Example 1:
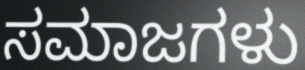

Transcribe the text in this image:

ಸಮಾಜಗಳು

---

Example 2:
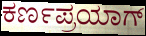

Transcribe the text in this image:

ಕರ್ಣಪ್ರಯಾಗ್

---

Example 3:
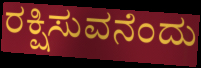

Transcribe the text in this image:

ರಕ್ಷಿಸುವನೆಂದು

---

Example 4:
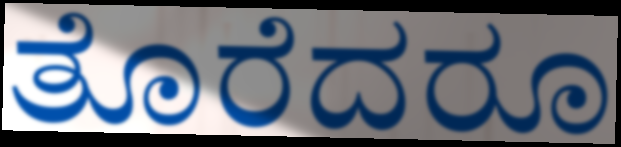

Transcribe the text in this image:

ತೊರೆದರೂ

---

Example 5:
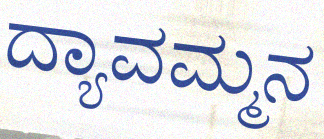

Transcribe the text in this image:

ದ್ಯಾವಮ್ಮನ